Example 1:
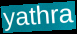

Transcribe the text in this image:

yathra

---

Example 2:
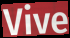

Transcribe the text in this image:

Vive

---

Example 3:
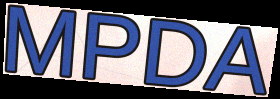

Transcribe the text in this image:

MPDA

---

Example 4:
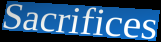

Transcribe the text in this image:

Sacrifices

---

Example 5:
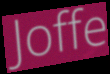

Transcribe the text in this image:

Joffe